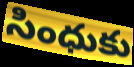
సింధుకు